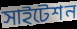
সাইটেশন